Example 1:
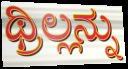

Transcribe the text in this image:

ಥ್ರಿಲ್ಲನ್ನು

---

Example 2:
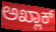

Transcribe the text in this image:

ಅಖ್ಲಾಕ್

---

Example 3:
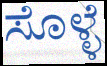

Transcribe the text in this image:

ಸೊಳ್ಳೆ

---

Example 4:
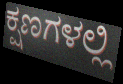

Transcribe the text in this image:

ಕ್ಷಣಗಳಲ್ಲಿ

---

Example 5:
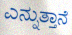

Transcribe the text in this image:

ಎನ್ನುತ್ತಾನೆ